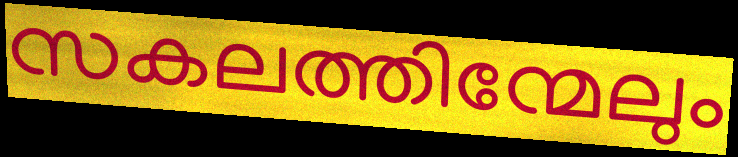
സകലത്തിന്മേലും